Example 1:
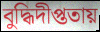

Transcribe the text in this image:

বুদ্ধিদীপ্ততায়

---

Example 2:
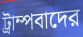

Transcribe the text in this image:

ট্রাম্পবাদের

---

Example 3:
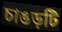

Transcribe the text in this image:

চাঙড়টি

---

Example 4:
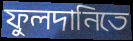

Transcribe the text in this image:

ফুলদানিতে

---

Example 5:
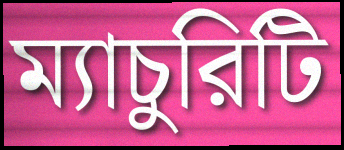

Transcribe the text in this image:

ম্যাচুরিটি